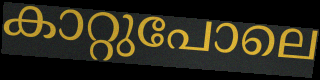
കാറ്റുപോലെ